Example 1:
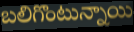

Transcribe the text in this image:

బలిగొంటున్నాయి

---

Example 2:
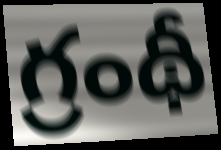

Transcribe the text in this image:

గ్రంథీ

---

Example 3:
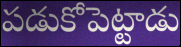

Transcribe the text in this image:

పడుకోపెట్టాడు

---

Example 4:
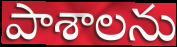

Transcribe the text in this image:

పాశాలను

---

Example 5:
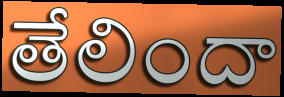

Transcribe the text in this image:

తేలిందా